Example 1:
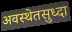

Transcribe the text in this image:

अवस्थेतसुध्दा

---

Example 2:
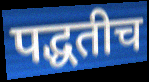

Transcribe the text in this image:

पद्धतीच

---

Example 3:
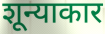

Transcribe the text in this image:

शून्याकार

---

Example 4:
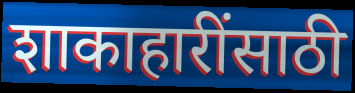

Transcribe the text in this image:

शाकाहारींसाठी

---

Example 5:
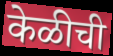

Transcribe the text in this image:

केळीची